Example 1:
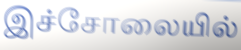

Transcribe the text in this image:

இச்சோலையில்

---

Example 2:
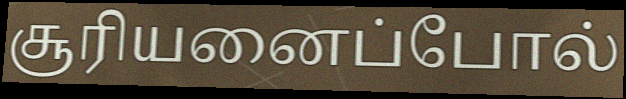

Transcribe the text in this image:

சூரியனைப்போல்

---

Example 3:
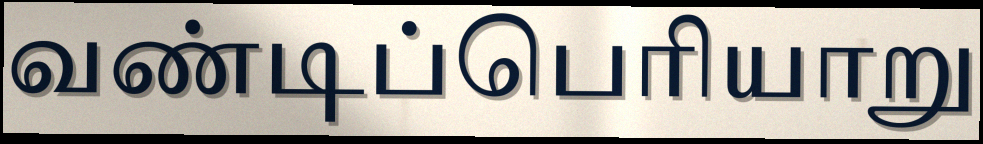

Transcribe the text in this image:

வண்டிப்பெரியாறு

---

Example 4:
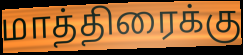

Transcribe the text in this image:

மாத்திரைக்கு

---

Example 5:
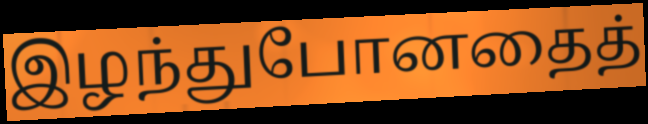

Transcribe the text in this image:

இழந்துபோனதைத்